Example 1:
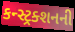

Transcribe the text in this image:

કન્સ્ટ્રક્શનની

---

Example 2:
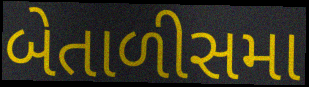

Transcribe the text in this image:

બેતાળીસમા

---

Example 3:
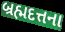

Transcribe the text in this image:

બ્રહ્મદત્તના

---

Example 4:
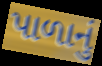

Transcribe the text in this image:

પાળાનું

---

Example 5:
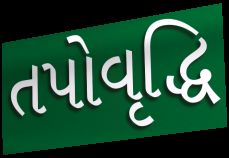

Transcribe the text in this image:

તપોવૃદ્ધિ